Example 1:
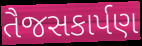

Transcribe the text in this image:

તૈજસકાર્પણ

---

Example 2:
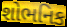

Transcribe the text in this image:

શોભનિક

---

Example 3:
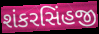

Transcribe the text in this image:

શંકરસિંહજી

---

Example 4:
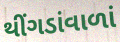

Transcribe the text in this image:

થીંગડાંવાળાં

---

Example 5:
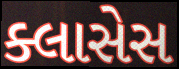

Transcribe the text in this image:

ક્લાસેસ